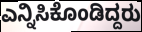
ಎನ್ನಿಸಿಕೊಂಡಿದ್ದರು